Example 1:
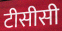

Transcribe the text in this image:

टीसीसी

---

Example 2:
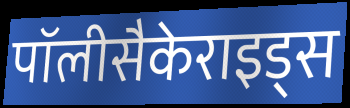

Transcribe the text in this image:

पॉलीसैकेराइड्स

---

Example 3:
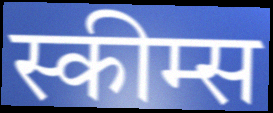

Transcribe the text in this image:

स्‍कीम्‍स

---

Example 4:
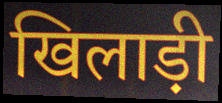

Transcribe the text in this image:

खिलाड़ी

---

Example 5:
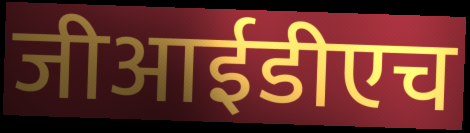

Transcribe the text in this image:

जीआईडीएच